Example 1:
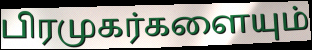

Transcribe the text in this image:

பிரமுகர்களையும்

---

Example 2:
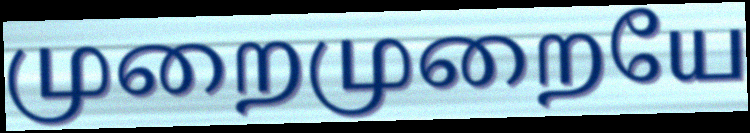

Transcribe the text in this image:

முறைமுறையே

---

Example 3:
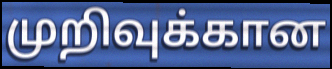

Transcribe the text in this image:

முறிவுக்கான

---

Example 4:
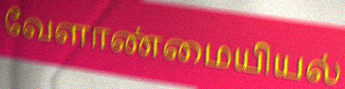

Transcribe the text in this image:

வேளாண்மையியல்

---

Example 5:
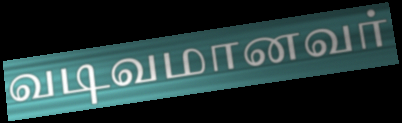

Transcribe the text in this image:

வடிவமானவர்